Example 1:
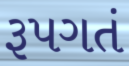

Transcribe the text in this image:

રૂપગતં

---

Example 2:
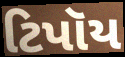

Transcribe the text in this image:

ટિપૉય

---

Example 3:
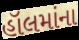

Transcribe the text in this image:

હૉલમાંના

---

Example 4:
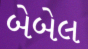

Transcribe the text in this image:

બેબેલ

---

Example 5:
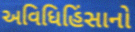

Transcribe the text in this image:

અવિધિહિંસાનો